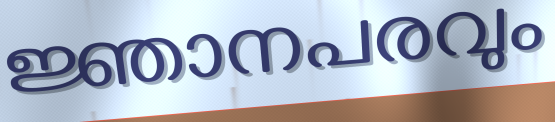
ജ്ഞാനപരവും